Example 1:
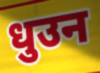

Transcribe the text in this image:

धुउन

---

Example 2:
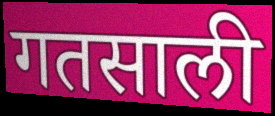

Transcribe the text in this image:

गतसाली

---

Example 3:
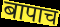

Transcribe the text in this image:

बापाच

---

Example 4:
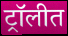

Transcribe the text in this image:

ट्रॉलीत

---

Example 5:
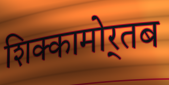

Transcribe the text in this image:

शिक्‍कामोर्तब